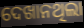
ଦେଖାନଥିଲା